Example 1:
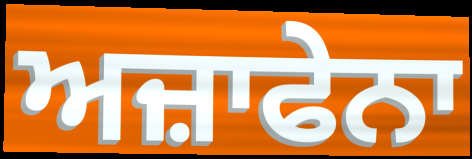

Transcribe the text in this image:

ਅਜ਼ਾਫੇਨਾ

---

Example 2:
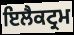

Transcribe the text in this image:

ਇਲੈਕਟ੍ਰਮ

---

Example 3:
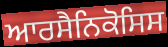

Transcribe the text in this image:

ਆਰਸੈਨਿਕੋਸਿਸ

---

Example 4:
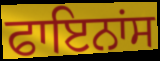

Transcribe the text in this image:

ਫਾਇਨਾਂਸ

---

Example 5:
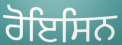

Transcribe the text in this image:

ਰੋਇਸਿਨ